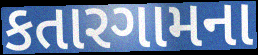
કતારગામના